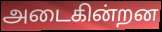
அடைகின்றன